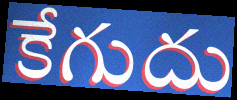
కేగుదు